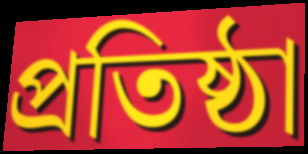
প্রতিষ্ঠা